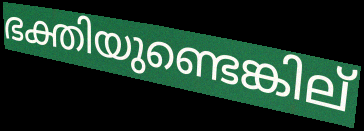
ഭക്തിയുണ്ടെങ്കില്